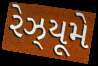
રેઝ્યૂમે